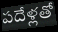
పదేళ్లతో